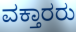
ವಕ್ತಾರರು